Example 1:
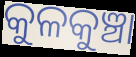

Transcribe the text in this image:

କୁଳକୁଞ୍ଚା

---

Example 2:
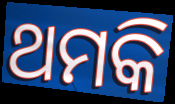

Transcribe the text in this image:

ଥମକି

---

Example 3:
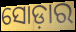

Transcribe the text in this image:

ସୋଡ଼ାର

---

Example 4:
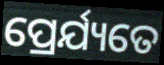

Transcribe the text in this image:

ପ୍ରେର୍ଯ୍ୟତେ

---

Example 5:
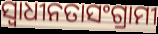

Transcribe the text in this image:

ସ୍ଵାଧୀନତାସଂଗ୍ରାମୀ